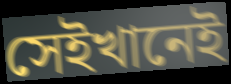
সেইখানেই